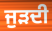
ਜੁੜਦੀ